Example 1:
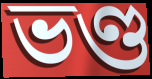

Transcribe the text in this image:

ভণ্ড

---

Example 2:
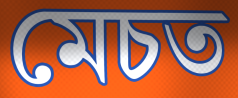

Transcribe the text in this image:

মেচত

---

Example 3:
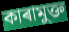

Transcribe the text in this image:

কাৰামুক্ত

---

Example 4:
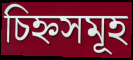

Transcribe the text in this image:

চিহ্নসমূহ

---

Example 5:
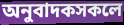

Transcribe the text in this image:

অনুবাদকসকলে